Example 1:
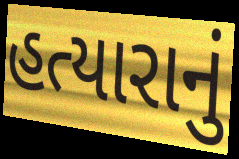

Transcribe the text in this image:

હત્યારાનું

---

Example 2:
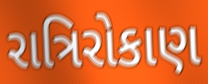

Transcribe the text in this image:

રાત્રિરોકાણ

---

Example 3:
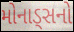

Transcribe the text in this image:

મોનાડ્સનો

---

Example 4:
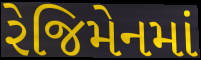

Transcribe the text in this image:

રેજિમેનમાં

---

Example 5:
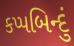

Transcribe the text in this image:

કપ્પબિન્દું